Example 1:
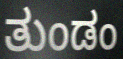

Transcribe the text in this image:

ತುಂಡಂ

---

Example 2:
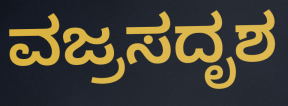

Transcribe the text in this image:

ವಜ್ರಸದೃಶ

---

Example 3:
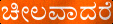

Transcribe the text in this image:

ಚೀಲವಾದರೆ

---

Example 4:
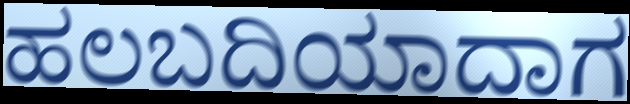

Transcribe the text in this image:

ಹಲಬದಿಯಾದಾಗ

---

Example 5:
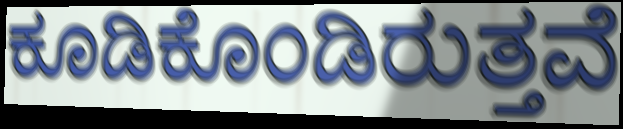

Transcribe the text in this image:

ಕೂಡಿಕೊಂಡಿರುತ್ತವೆ